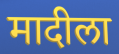
मादीला